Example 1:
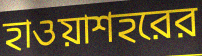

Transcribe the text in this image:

হাওয়াশহরের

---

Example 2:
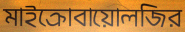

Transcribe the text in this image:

মাইক্রোবায়োলজির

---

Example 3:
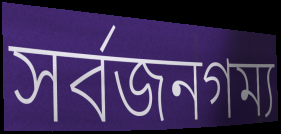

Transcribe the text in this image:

সর্বজনগম্য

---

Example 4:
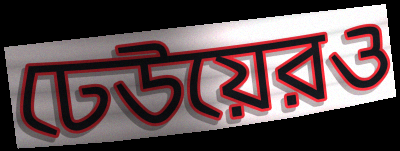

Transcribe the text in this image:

ঢেউয়েরও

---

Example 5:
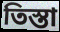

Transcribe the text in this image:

তিস্তা